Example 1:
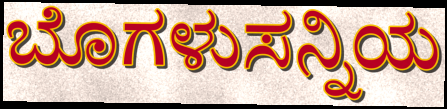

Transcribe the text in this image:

ಬೊಗಳುಸನ್ನಿಯ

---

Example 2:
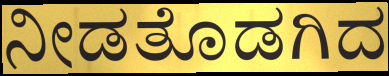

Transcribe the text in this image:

ನೀಡತೊಡಗಿದ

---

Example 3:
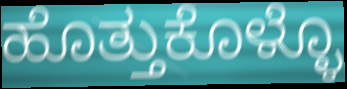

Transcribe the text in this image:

ಹೊತ್ತುಕೊಳ್ಳೊ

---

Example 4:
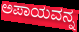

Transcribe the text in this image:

ಅಪಾಯವನ್ನ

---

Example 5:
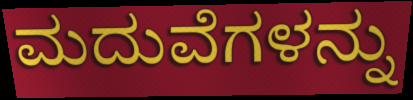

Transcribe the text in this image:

ಮದುವೆಗಳನ್ನು